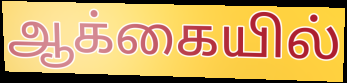
ஆக்கையில்